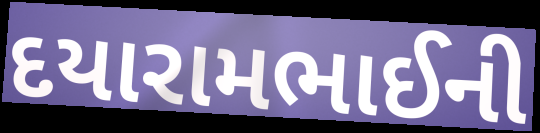
દયારામભાઈની